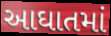
આઘાતમાં